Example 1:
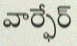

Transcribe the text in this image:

వార్ఫేర్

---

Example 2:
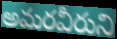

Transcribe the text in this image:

అమరవీరుని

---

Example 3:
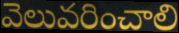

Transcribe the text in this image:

వెలువరించాలి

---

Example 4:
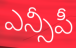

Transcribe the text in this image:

ఎన్సీపీ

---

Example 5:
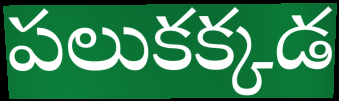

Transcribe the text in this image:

పలుకక్కడ